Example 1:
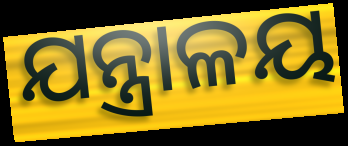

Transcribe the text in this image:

ଯନ୍ତ୍ରାଳୟ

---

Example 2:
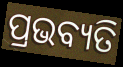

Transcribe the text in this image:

ପ୍ରଭବ୍ୟତି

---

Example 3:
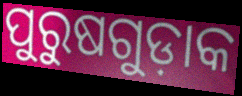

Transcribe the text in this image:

ପୁରୁଷଗୁଡ଼ାକ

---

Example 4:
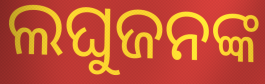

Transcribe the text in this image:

ଲଘୁଜନଙ୍କ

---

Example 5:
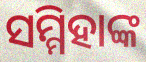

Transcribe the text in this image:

ସମ୍ମିହାଙ୍କ